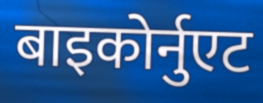
बाइकोर्नुएट